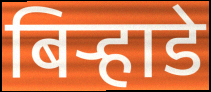
बिऱ्हाडे